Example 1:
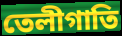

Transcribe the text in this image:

তেলীগাতি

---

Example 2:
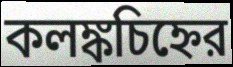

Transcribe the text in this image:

কলঙ্কচিহ্নের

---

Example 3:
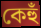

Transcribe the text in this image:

কেহুঁ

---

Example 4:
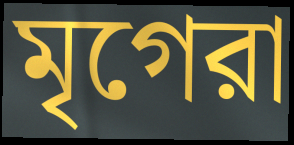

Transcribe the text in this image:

মৃগেরা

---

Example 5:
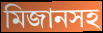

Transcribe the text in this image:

মিজানসহ